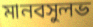
মানবসুলভ